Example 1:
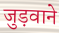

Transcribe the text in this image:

जुड़वाने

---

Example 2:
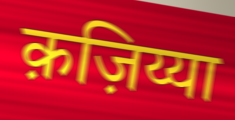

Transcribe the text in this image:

क़ज़िय्या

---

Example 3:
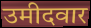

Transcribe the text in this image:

उमीदवार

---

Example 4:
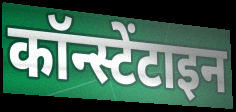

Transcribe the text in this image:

कॉन्स्टेंटाइन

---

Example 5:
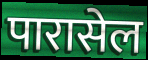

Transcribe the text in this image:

पारासेल